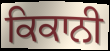
ਕਿਕਾਨੀ